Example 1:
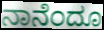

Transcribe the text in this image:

ನಾನೆಂದೂ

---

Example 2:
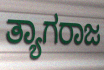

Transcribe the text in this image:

ತ್ಯಾಗರಾಜ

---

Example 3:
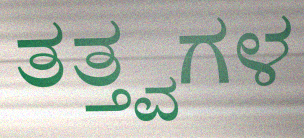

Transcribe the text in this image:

ತತ್ತ್ವಗಳ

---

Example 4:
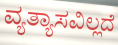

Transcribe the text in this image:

ವ್ಯತ್ಯಾಸವಿಲ್ಲದೆ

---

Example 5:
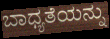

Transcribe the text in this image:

ಬಾಧ್ಯತೆಯನ್ನು